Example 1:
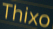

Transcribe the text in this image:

Thixo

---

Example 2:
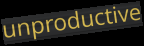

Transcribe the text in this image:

unproductive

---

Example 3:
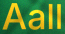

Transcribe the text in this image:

Aall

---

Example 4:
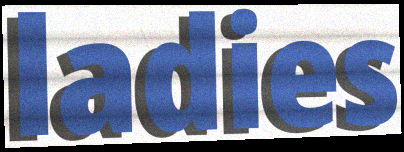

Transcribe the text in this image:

ladies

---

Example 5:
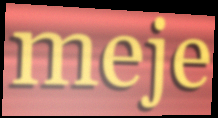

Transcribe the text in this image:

meje